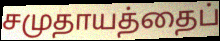
சமுதாயத்தைப்